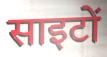
साइटों